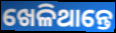
ଖେଳିଥାନ୍ତେ